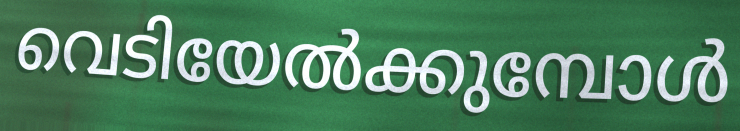
വെടിയേൽക്കുമ്പോൾ